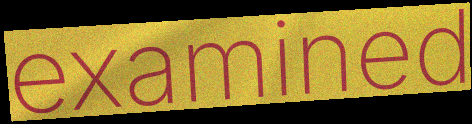
examined